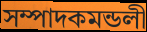
সম্পাদকমন্ডলী